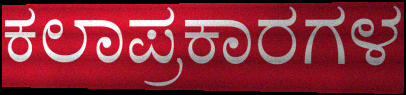
ಕಲಾಪ್ರಕಾರಗಳ